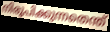
നിരൂപിക്കുന്നതെന്ത്